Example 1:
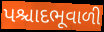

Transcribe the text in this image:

પશ્ચાદભૂવાળી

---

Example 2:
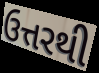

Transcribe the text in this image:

ઉત્તરથી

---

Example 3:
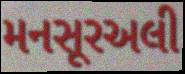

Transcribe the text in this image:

મનસૂરઅલી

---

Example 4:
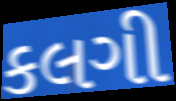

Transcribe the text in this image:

કલગી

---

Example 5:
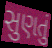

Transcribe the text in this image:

સુણતું